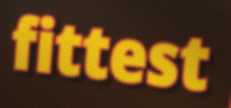
fittest